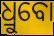
ଧ୍ରୁବୋ